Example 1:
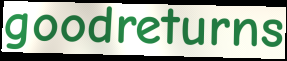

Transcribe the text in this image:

goodreturns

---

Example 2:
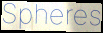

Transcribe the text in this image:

Spheres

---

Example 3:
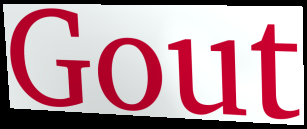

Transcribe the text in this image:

Gout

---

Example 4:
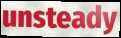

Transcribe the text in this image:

unsteady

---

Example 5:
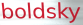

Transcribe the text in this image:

boldsky